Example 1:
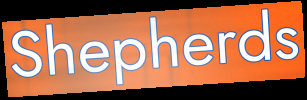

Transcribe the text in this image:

Shepherds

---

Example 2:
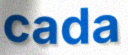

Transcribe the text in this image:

cada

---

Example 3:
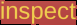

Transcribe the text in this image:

inspect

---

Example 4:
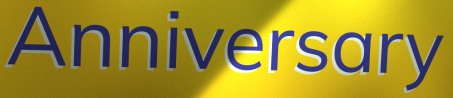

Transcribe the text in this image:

Anniversary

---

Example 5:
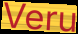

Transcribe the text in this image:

Veru